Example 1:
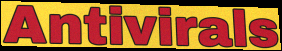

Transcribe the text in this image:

Antivirals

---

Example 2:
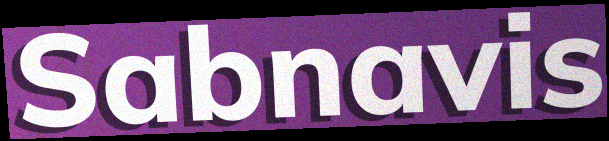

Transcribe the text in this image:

Sabnavis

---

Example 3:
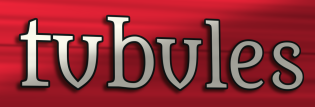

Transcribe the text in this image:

tubules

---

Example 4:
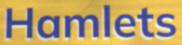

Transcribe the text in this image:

Hamlets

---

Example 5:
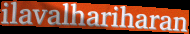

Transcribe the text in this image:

ilavalhariharan